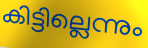
കിട്ടില്ലെന്നും